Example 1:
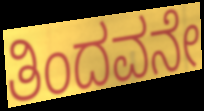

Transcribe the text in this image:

ತಿಂದವನೇ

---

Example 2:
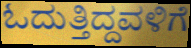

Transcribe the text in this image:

ಓದುತ್ತಿದ್ದವಳಿಗೆ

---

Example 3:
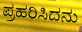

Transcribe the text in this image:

ಪ್ರಹರಿಸಿದನು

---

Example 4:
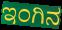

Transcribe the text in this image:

ಇಂಗಿನ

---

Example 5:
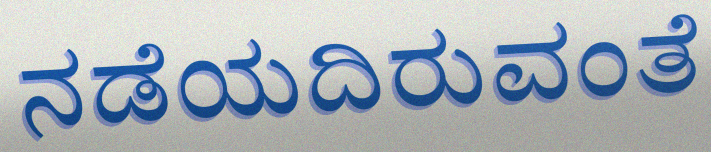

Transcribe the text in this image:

ನಡೆಯದಿರುವಂತೆ